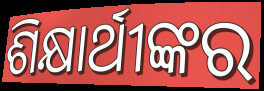
ଶିକ୍ଷାର୍ଥୀଙ୍କର